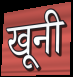
खूनी